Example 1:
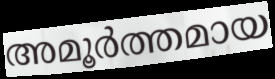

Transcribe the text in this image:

അമൂർത്തമായ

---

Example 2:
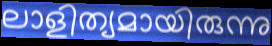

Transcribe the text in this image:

ലാളിത്യമായിരുന്നു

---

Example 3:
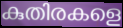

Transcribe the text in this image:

കുതിരകളെ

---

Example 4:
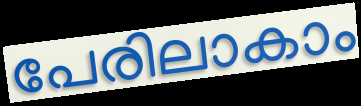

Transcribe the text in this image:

പേരിലാകാം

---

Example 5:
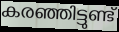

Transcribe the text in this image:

കരഞ്ഞിട്ടുണ്ട്